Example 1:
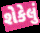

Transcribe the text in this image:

શેકેલું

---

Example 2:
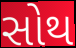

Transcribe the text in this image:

સોથ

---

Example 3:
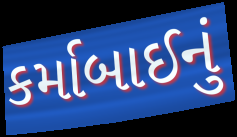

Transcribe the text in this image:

કર્માબાઈનું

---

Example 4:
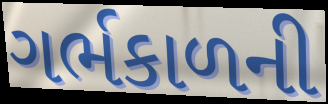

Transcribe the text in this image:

ગર્ભકાળની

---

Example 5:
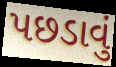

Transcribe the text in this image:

પછડાવું